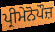
ਪ੍ਰੀਮੇਨੋਪੌਜ਼